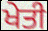
ਖੇਤੀ